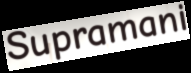
Supramani